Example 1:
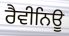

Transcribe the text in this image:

ਰੈਵੀਨਿਊ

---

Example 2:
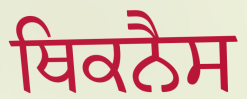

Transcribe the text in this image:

ਥਿਕਨੈਸ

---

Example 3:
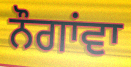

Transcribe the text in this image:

ਨੌਗਾਂਵਾ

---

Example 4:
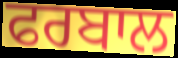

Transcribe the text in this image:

ਫਰਬਾਲ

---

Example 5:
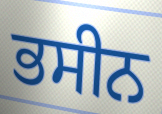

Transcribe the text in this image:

ਭਸੀਨ